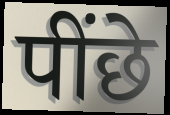
पींछे